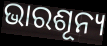
ଭାରଶୂନ୍ୟ